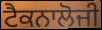
ਟੈਕਨਾਲੋਜੀ